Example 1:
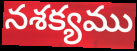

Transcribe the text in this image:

నశక్యము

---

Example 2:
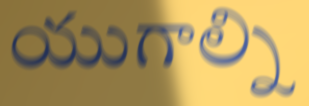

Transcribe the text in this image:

యుగాల్ని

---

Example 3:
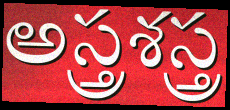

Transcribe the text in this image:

అస్త్రశస్త్ర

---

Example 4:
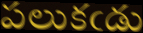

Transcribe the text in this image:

పలుకఁడు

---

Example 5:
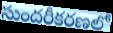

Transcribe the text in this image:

సుందరీకరణలో